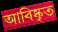
আবিষ্কৃত